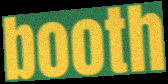
booth